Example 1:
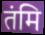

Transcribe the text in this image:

तंमि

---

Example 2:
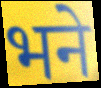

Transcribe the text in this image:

भने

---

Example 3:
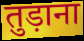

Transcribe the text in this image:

तुड़ाना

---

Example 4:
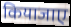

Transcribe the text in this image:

कियाजाए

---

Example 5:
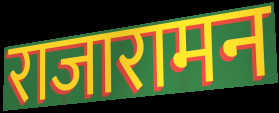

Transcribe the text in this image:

राजारामन